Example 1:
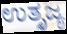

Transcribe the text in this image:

ಉತ್ಸೃಜ್ಯ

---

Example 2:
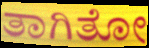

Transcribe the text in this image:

ತಾಗಿತೋ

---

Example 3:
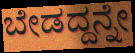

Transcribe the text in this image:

ಬೇಡದ್ದನ್ನೇ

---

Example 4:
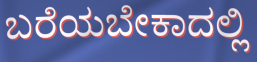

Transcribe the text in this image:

ಬರೆಯಬೇಕಾದಲ್ಲಿ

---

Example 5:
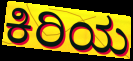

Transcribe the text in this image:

ಕಿರಿಯ